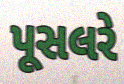
પૂસલરે